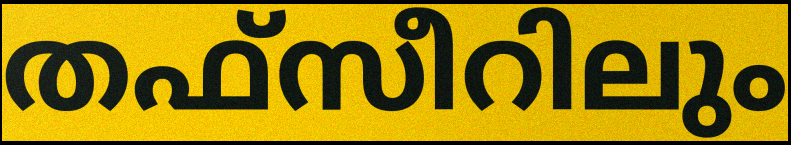
തഫ്സീറിലും